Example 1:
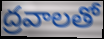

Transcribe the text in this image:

ద్రవాలతో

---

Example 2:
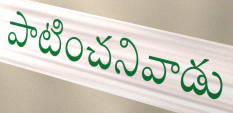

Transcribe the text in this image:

పాటించనివాడు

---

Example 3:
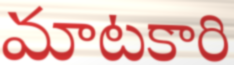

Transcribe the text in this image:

మాటకారి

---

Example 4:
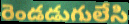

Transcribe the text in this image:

రెండడుగులేసి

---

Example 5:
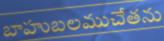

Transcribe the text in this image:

బాహుబలముచేతను